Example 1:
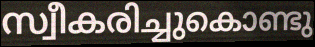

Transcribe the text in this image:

സ്വീകരിച്ചുകൊണ്ടു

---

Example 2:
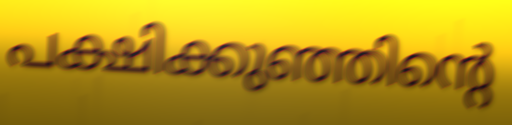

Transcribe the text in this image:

പക്ഷിക്കുഞ്ഞിന്റെ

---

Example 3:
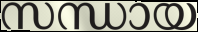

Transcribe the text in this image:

സന്ധായ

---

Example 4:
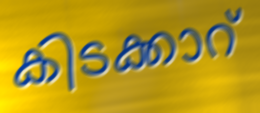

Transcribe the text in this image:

കിടക്കാറ്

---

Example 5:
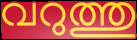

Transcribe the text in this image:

വറുത്തു